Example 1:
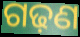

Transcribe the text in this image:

ଗଢ଼ଣ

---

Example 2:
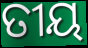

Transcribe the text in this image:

ତୀୟ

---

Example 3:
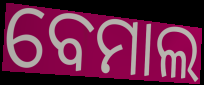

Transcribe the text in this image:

ବେମାଲ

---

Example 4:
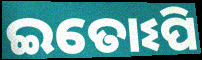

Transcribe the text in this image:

ଇତୋଽପି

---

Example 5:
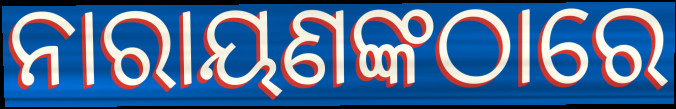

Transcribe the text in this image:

ନାରାୟଣଙ୍କଠାରେ